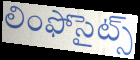
లింఫోసైట్స్